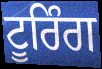
ਟੂਰਿੰਗ